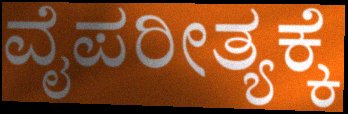
ವೈಪರೀತ್ಯಕ್ಕೆ